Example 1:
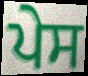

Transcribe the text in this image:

ਪੇਸ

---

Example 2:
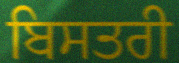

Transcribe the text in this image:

ਬਿਸਤਰੀ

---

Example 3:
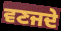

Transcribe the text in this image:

ਵਣਜਦੇ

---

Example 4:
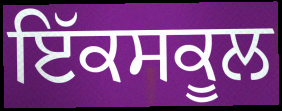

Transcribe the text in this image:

ਇੱਕਸਕੂਲ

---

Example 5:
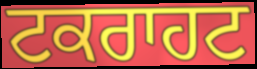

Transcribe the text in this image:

ਟਕਰਾਹਟ